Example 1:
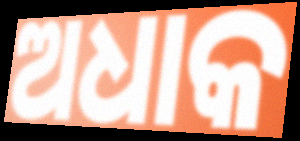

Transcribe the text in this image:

ଅଧାକ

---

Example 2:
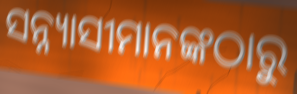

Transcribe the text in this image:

ସନ୍ନ୍ୟାସୀମାନଙ୍କଠାରୁ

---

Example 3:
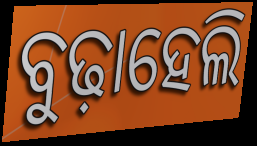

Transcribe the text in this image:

ବୁଢ଼ାହେଲି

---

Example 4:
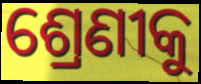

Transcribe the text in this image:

ଶ୍ରେଣୀକୁ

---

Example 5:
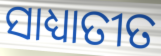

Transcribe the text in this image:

ସାଧ୍ୟାତୀତ